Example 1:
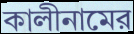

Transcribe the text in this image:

কালীনামের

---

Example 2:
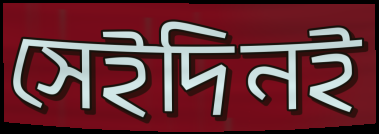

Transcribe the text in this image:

সেইদিনই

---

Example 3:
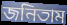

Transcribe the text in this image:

জনিতাম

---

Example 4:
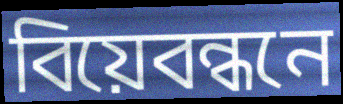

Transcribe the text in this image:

বিয়েবন্ধনে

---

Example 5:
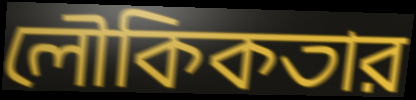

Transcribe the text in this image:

লৌকিকতার